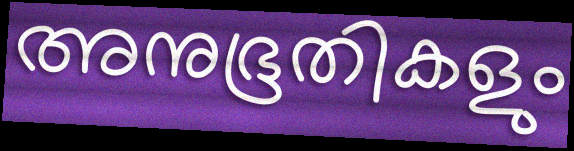
അനുഭൂതികളും